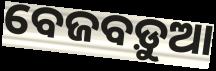
ବେଜବଡ଼ୁଆ